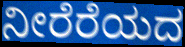
ನೀರೆರೆಯದ